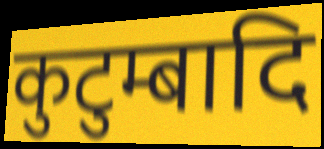
कुटुम्बादि